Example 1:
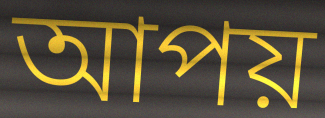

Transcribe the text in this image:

আপয়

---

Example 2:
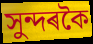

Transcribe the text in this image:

সুন্দৰকৈ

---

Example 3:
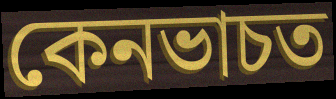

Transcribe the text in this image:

কেনভাচত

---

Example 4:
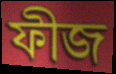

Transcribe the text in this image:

ফীজ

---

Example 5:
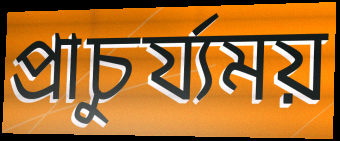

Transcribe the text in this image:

প্ৰাচুৰ্য্যময়